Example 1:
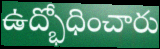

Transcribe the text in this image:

ఉద్భోధించారు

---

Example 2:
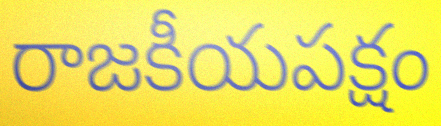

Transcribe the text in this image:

రాజకీయపక్షం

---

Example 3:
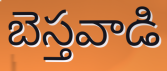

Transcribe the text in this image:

బెస్తవాడి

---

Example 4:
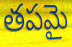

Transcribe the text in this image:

తపమై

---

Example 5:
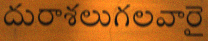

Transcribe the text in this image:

దురాశలుగలవారై